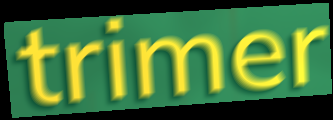
trimer